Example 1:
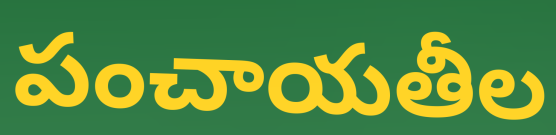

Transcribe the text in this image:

పంచాయతీల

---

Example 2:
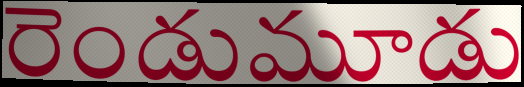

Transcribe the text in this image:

రెండుమూడు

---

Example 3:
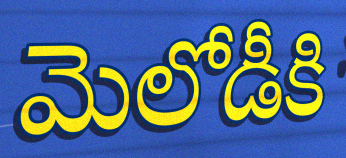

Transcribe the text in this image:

మెలోడీకి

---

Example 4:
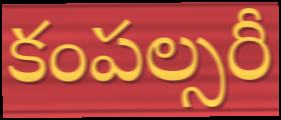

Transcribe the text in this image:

కంపల్సరీ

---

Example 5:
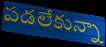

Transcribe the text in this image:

పడలేకున్నా